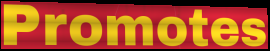
Promotes